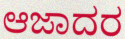
ಆಜಾದರ